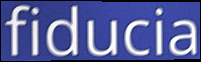
fiducia